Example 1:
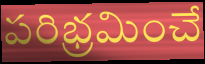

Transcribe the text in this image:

పరిభ్రమించే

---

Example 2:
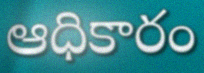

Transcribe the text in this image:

ఆధికారం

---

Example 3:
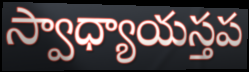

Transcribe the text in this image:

స్వాధ్యాయస్తప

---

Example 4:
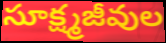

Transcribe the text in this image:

సూక్ష్మజీవుల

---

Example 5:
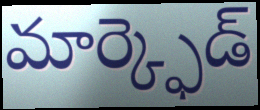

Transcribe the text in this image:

మార్క్ఫెడ్